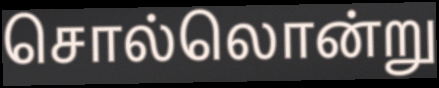
சொல்லொன்று